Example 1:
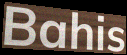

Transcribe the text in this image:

Bahis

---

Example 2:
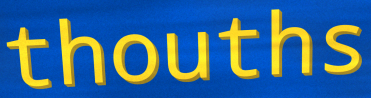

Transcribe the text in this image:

thouths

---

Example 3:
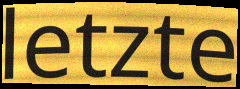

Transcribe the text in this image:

letzte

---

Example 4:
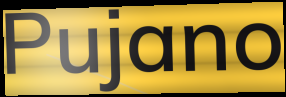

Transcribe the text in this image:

Pujano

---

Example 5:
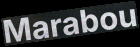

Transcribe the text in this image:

Marabou